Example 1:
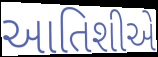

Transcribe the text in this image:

આતિશીએ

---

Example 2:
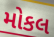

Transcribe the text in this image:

મોકલ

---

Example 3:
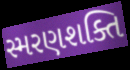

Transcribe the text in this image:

સ્મરણશક્તિ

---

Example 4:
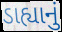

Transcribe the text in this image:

ડાહ્યાનું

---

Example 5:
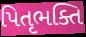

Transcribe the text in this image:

પિતૃભક્તિ